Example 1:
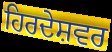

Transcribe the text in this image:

ਹਿਰਦੇਸ਼ਵਰ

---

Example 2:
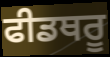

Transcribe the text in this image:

ਫੀਡਥਰੂ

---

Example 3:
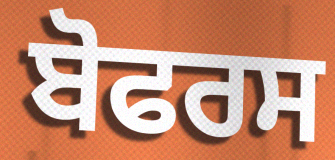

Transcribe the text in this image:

ਬੋਫਰਸ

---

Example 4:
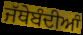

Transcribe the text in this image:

ਜੱਥੇਬੰਦੀਆੰ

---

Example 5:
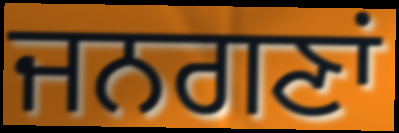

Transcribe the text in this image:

ਜਨਗਣਾਂ